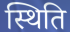
स्थिति